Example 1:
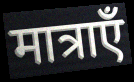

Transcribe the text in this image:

मात्राएँ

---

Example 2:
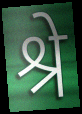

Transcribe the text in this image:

श्रे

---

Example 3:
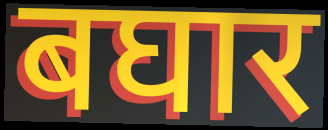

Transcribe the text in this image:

बघार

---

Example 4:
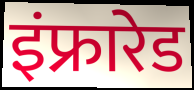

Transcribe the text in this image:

इंफ्रारेड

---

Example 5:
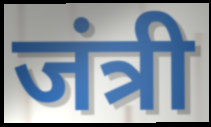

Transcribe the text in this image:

जंत्री